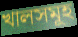
খালসমূহ